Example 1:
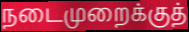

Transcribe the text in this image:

நடைமுறைக்குத்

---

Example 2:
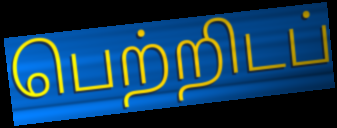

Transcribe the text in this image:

பெற்றிடப்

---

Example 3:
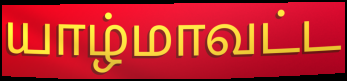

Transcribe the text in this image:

யாழ்மாவட்ட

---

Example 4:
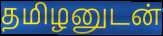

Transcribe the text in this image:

தமிழனுடன்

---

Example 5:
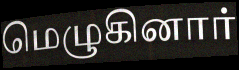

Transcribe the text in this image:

மெழுகினார்